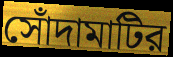
সোঁদামাটির